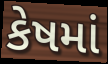
કેષમાં